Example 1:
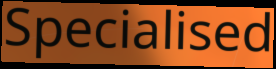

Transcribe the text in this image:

Specialised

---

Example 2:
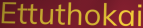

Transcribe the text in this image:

Ettuthokai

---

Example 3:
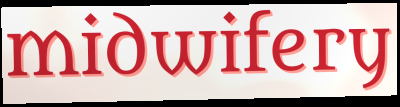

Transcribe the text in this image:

midwifery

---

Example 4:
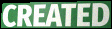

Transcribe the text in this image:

CREATED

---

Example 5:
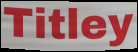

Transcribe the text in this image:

Titley